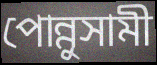
পোন্নুসামী